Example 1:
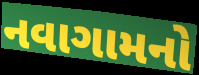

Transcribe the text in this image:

નવાગામનો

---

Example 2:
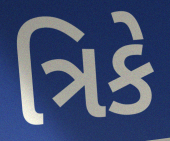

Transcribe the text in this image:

ત્રિકે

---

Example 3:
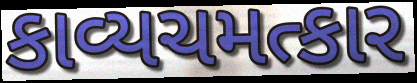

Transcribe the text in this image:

કાવ્યચમત્કાર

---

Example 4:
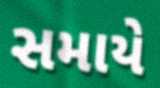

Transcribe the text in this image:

સમાયે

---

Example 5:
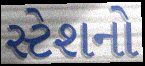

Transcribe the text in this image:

સ્ટેશનો